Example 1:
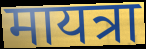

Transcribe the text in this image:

मायत्रा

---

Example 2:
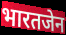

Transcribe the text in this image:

भारतजेन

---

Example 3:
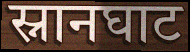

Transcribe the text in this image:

स्नानघाट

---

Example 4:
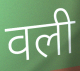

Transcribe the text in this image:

वली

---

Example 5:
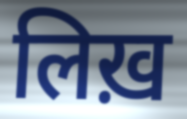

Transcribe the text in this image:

लिख़